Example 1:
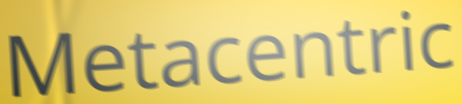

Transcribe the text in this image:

Metacentric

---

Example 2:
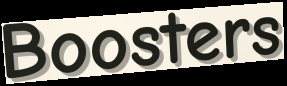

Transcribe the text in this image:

Boosters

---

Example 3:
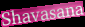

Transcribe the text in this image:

Shavasana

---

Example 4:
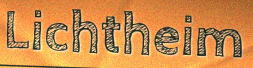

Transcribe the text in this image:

Lichtheim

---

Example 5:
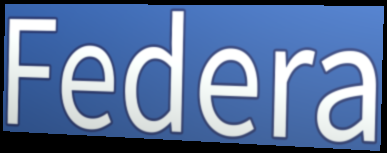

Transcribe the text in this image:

Federa